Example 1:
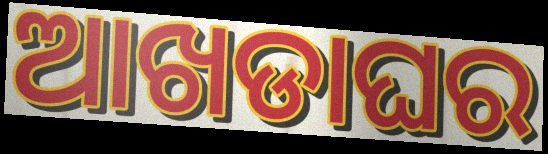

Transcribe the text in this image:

ଆଖଡାଘର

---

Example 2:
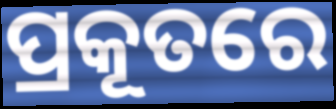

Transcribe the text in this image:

ପ୍ରକୂତରେ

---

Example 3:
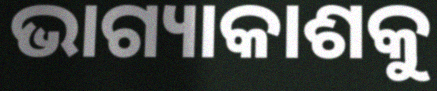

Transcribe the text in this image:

ଭାଗ୍ୟାକାଶକୁ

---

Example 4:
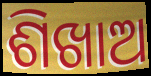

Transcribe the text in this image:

ଶିଖାଅ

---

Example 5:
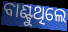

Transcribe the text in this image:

ବାଣ୍ଟୁଥିଲେ